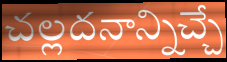
చల్లదనాన్నిచ్చే